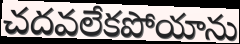
చదవలేకపోయాను